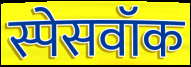
स्पेसवॉक